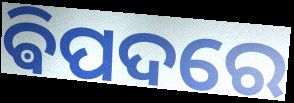
ଵିପଦରେ